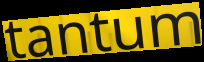
tantum